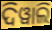
ଦିୱାଲି